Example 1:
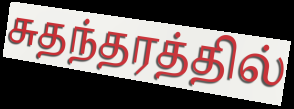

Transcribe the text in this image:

சுதந்தரத்தில்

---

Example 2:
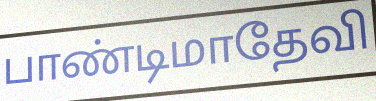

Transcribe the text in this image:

பாண்டிமாதேவி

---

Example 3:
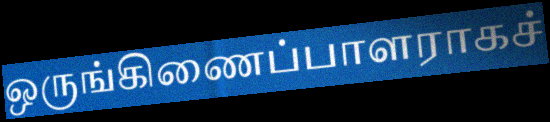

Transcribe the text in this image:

ஒருங்கிணைப்பாளராகச்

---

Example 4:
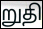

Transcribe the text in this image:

றுதி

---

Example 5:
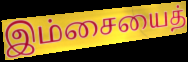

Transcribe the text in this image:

இம்சையைத்